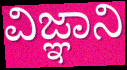
ವಿಜ್ಞಾನಿ